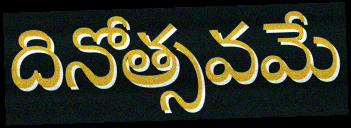
దినోత్సవమే